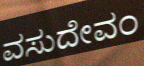
ವಸುದೇವಂ